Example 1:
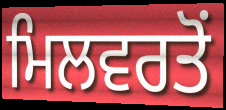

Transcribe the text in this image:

ਮਿਲਵਰਤੋਂ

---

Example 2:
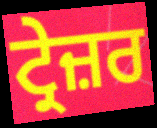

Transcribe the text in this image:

ਟ੍ਰੇਜ਼ਰ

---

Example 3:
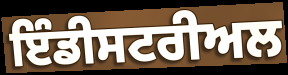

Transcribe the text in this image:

ਇੰਡੀਸਟਰੀਅਲ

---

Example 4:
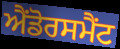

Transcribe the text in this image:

ਐਂਡੋਰਸਮੈਂਟ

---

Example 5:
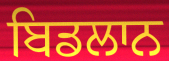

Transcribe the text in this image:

ਬਿਡਲਾਨ